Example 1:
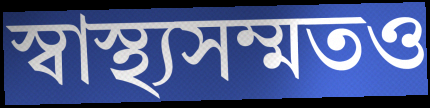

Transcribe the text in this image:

স্বাস্থ্যসম্মতও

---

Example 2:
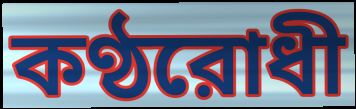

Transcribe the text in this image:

কণ্ঠরোধী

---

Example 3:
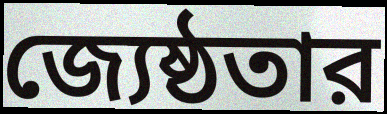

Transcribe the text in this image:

জ্যেষ্ঠতার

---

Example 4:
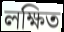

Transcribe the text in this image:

লক্ষিত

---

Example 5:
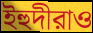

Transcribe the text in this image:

ইহুদীরাও